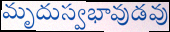
మృదుస్వభావుడవు